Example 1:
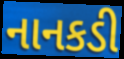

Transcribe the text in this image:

નાનકડી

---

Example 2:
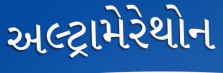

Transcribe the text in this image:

અલ્ટ્રામેરેથોન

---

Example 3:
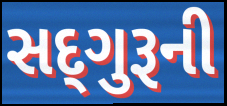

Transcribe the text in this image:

સદ્‌ગુરૂની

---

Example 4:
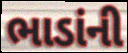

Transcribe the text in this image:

ભાડાંની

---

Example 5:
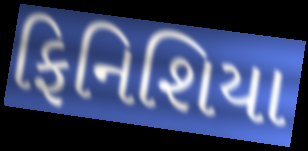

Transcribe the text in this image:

ફિનિશિયા